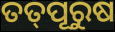
ତତ୍‌ପୂରୁଷ